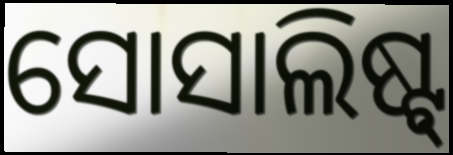
ସୋସାଲିଷ୍ଟ୍